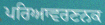
ਪਰਿਆਵਰਣਨਕ